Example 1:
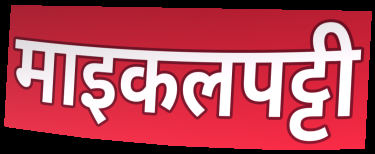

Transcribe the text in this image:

माइकलपट्टी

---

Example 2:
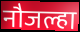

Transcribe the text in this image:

नौजल्हा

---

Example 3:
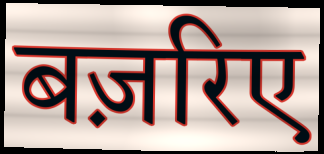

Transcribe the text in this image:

बज़रिए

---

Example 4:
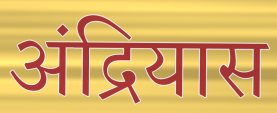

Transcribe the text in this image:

अंद्रियास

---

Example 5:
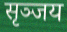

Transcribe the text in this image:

सृञ्जय